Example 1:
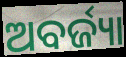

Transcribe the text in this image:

ଅବର୍ଜ୍ୟା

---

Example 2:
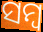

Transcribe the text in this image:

ସମ୍ବ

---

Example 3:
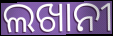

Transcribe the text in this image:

ଲଖାନୀ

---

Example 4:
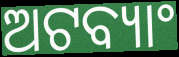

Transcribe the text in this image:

ଅଟବ୍ୟାଂ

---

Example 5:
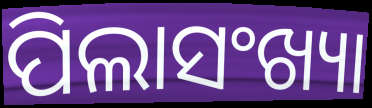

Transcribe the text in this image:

ପିଲାସଂଖ୍ୟା